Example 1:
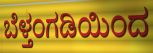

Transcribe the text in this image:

ಬೆಳ್ತಂಗಡಿಯಿಂದ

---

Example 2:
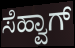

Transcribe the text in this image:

ಸೆಹ್ವಾಗ್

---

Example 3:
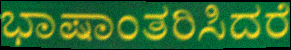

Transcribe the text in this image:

ಭಾಷಾಂತರಿಸಿದರೆ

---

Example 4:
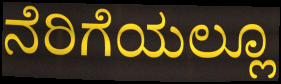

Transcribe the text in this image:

ನೆರಿಗೆಯಲ್ಲೂ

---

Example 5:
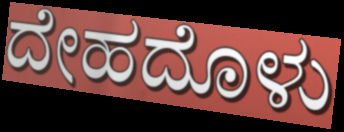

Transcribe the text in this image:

ದೇಹದೊಳು